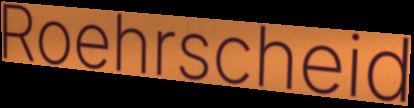
Roehrscheid